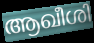
ആഖീശി